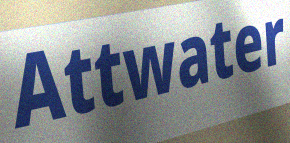
Attwater